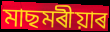
মাছমৰীয়াৰ